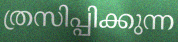
ത്രസിപ്പിക്കുന്ന